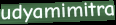
udyamimitra